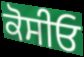
ਕੋਸੀਓ